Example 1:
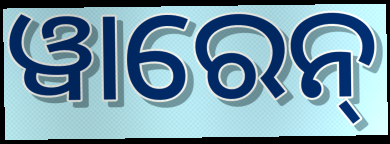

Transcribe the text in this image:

ୱାରେନ୍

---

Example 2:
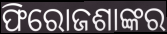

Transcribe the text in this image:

ଫିରୋଜଶାଙ୍କର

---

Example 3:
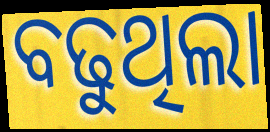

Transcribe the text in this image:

ବଢୁଥିଲା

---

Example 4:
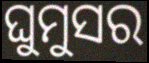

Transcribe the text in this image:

ଘୁମୁସର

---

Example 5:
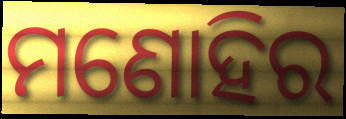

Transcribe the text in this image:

ମଣୋହିର